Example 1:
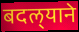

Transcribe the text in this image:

बदल्याने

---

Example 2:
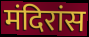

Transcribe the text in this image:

मंदिरांस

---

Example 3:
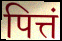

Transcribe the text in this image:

पित्तं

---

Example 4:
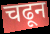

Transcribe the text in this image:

चढून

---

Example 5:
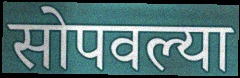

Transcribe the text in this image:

सोपवल्या